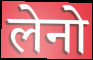
लेनो